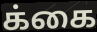
க்கை